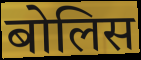
बोलिस